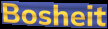
Bosheit